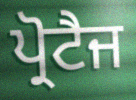
ਪ੍ਰੋਟੈਜ